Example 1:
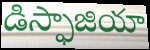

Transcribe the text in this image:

డిస్ఫాజియా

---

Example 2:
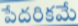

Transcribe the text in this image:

పేదరికమే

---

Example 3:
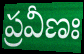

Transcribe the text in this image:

ప్రవీణః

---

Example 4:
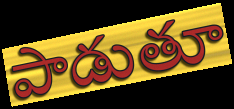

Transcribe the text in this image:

పాడుతూ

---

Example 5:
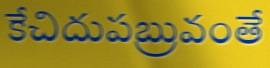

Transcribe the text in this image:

కేచిదుపబ్రువంతే